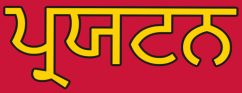
ਪ੍ਰਯਟਨ